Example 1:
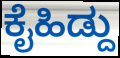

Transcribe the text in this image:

ಕೈಹಿಡ್ದು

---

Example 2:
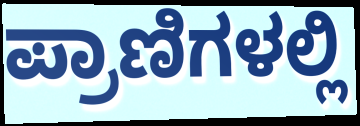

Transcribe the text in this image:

ಪ್ರಾಣಿಗಳಲ್ಲಿ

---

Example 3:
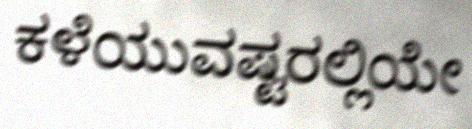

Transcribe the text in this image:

ಕಳೆಯುವಷ್ಟರಲ್ಲಿಯೇ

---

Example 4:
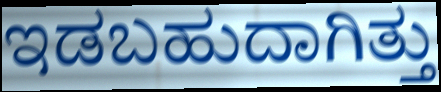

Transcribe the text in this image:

ಇಡಬಹುದಾಗಿತ್ತು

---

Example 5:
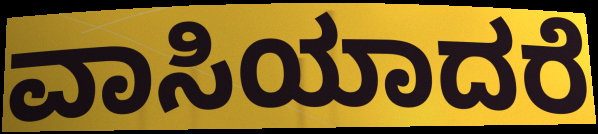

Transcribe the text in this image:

ವಾಸಿಯಾದರೆ